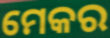
ମେକର